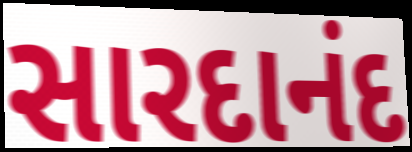
સારદાનંદ